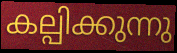
കല്പിക്കുന്നു